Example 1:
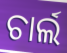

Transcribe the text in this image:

ଚାର୍ଲ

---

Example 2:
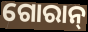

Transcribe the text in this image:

ଗୋରାନ୍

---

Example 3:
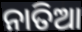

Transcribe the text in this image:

ନାତିଆ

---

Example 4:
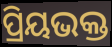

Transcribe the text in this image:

ପ୍ରିୟଭକ୍ତ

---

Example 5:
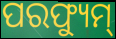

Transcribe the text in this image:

ପରଫ୍ୟୁମ୍